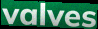
valves